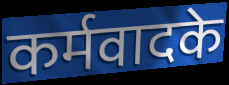
कर्मवादके